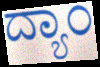
ದ್ಯಾಂ